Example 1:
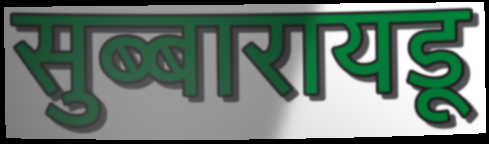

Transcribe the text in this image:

सुब्बारायडू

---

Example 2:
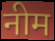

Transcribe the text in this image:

नीम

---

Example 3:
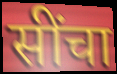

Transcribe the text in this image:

सींचा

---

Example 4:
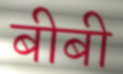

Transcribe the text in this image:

बीबी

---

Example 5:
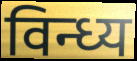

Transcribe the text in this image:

विन्ध्य